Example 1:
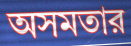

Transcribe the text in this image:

অসমতার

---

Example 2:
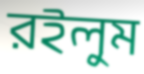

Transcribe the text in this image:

রইলুম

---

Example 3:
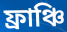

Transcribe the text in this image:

ফ্রাঞ্চি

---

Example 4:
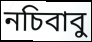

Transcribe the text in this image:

নচিবাবু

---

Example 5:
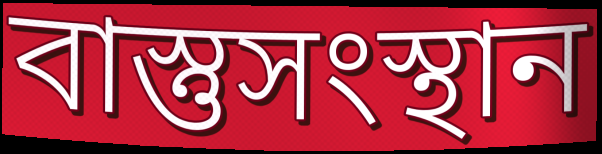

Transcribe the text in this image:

বাস্তুসংস্থান